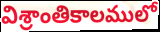
విశ్రాంతికాలములో